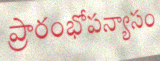
ప్రారంభోపన్యాసం